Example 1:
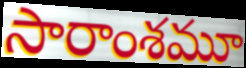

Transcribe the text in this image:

సారాంశమూ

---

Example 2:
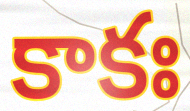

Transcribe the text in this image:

కాకః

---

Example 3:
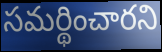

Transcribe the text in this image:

సమర్థించారని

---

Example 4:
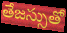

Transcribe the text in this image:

తేజస్సుతో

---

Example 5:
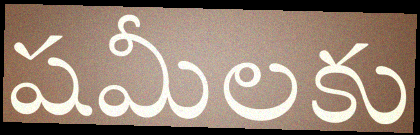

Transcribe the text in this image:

షమీలకు